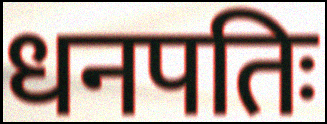
धनपतिः